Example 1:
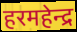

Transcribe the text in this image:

हरमहेन्द्र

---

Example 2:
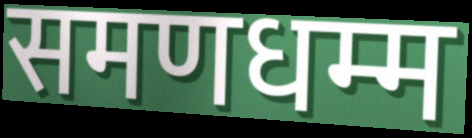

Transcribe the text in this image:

समणधम्म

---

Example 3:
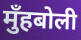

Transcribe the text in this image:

मुँहबोली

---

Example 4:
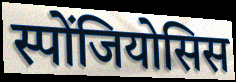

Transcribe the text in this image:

स्पोंजियोसिस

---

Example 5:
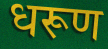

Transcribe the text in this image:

धरूण